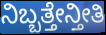
ನಿಬ್ಬತ್ತೇನ್ತೀತಿ